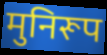
मुनिरूप